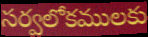
సర్వలోకములకు